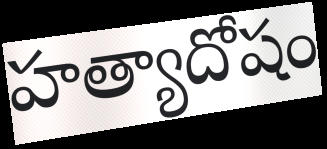
హత్యాదోషం